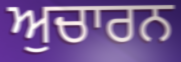
ਅੁਚਾਰਨ